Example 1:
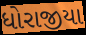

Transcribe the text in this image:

ધોરાજીયા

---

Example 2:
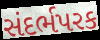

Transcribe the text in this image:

સંદર્ભપરક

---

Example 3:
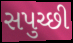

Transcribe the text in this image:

સપુચ્છી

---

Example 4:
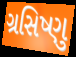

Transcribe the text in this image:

ગ્રસિષ્ણુ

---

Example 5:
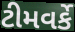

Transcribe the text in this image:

ટીમવર્કે